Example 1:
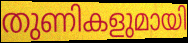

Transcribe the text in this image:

തുണികളുമായി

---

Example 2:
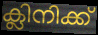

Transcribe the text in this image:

ക്ലിനിക്ക്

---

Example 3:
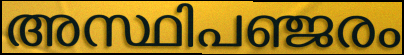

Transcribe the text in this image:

അസ്ഥിപഞ്ജരം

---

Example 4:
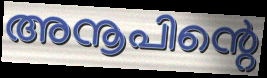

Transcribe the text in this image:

അനൂപിന്റെ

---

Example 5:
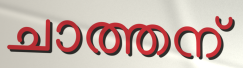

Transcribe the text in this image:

ചാത്തന്